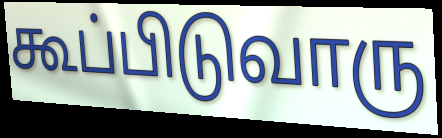
கூப்பிடுவாரு